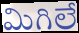
మిగిలే